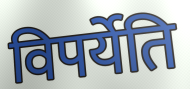
विपर्येति